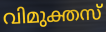
വിമുക്തസ്